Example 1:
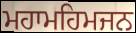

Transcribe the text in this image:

ਮਹਾਮਹਿਮਜਨ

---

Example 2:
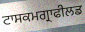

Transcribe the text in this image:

ਟਾਸਕਮਗ੍ਰਾਫੀਲਡ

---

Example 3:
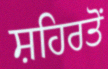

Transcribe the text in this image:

ਸ਼ਹਿਰਤੋਂ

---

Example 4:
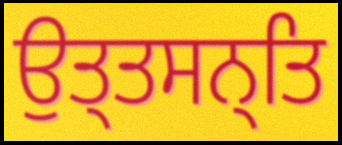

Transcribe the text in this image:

ਉਤ੍ਤਸਨ੍ਤਿ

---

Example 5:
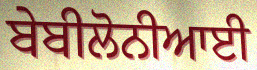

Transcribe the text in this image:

ਬੇਬੀਲੋਨੀਆਈ